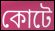
কোটে